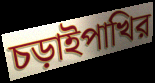
চড়াইপাখির